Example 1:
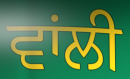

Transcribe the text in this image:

ਵਾਂਲੀ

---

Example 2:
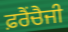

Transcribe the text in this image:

ਫ਼ਰੈਂਚੈਜੀ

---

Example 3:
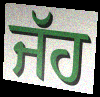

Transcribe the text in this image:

ਜੱਹ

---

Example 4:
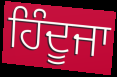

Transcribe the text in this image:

ਹਿੰਦੂਜਾ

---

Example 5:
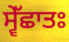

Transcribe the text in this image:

ਸ੍ਵੇੱਛਾਤਃ